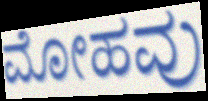
ಮೋಹವು